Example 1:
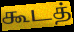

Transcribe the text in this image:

கூடத்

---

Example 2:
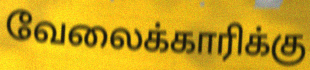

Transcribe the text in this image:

வேலைக்காரிக்கு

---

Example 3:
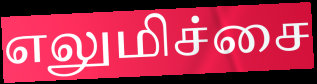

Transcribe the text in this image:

எலுமிச்சை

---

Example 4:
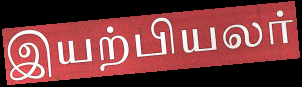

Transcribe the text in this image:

இயற்பியலர்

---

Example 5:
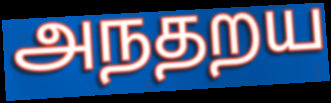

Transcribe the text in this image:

அநதறய